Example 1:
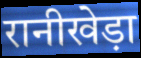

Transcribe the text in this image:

रानीखेड़ा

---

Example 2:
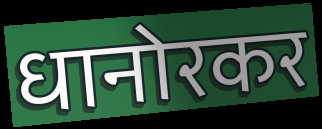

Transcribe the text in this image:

धानोरकर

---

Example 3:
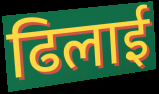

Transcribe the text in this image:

ढिलाई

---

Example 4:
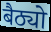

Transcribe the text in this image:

बैठ्यो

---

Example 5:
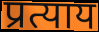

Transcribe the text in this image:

प्रत्याय